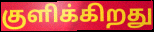
குளிக்கிறது